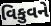
વિકુવને